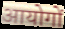
आयोगों